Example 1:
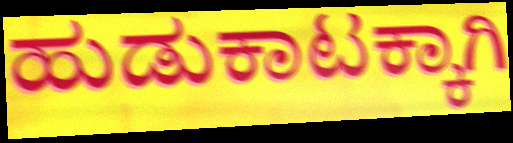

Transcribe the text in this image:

ಹುಡುಕಾಟಕ್ಕಾಗಿ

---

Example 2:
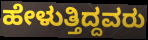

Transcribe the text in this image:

ಹೇಳುತ್ತಿದ್ದವರು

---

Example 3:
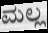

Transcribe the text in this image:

ಮಲ್ಲ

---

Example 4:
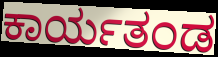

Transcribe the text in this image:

ಕಾರ್ಯತಂಡ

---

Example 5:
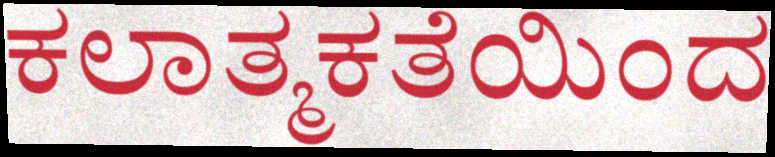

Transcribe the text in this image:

ಕಲಾತ್ಮಕತೆಯಿಂದ